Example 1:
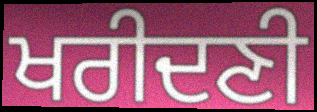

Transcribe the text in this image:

ਖਰੀਦਣੀ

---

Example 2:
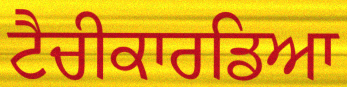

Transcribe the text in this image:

ਟੈਚੀਕਾਰਡਿਆ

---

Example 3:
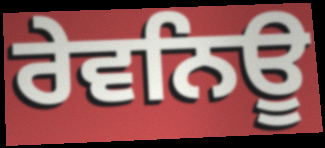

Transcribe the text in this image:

ਰੇਵਨਿਊ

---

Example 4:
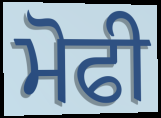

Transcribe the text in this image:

ਮੋਫੀ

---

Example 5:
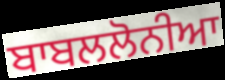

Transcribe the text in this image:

ਬਾਬਲਲੋਨੀਆ